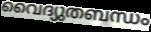
വൈദ്യുതബന്ധം